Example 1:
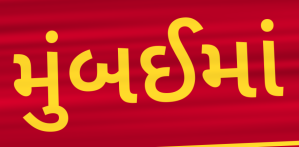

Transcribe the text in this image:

મુંબઈમાં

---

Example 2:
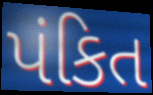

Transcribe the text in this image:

પંકિત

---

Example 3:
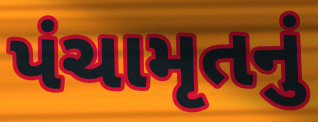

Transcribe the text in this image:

પંચામૃતનું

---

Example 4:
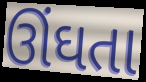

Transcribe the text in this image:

ઊંઘતા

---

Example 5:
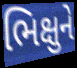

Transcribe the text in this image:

ભિક્ષુને